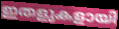
ഇതളുകളായി